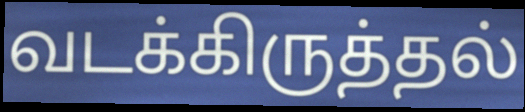
வடக்கிருத்தல்